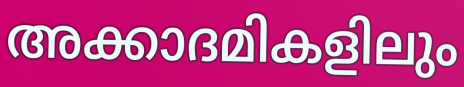
അക്കാദമികളിലും